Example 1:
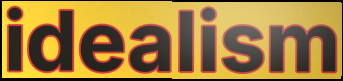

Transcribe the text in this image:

idealism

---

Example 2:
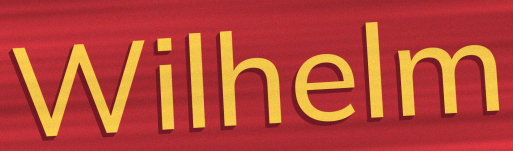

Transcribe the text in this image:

Wilhelm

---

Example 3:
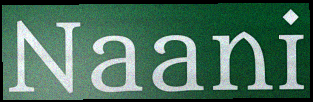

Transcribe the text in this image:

Naani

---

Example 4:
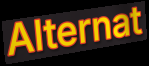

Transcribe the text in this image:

Alternat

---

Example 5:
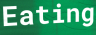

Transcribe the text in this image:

Eating